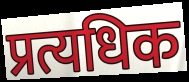
प्रत्यधिक